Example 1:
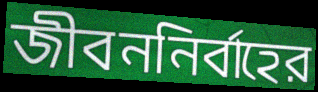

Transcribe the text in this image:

জীবননির্বাহের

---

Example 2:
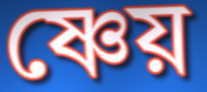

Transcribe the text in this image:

ষ্ণেয়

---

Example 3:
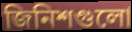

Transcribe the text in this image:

জিনিশগুলো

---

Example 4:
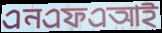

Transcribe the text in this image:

এনএফএআই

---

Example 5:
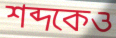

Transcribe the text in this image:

শব্দকেও